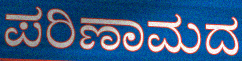
ಪರಿಣಾಮದ